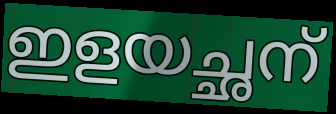
ഇളയച്ഛന്